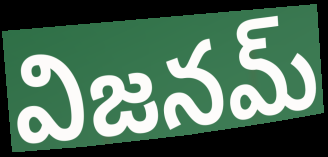
విజనమ్